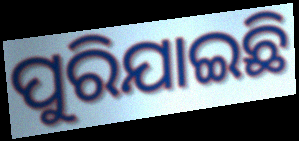
ପୁରିଯାଇଛି